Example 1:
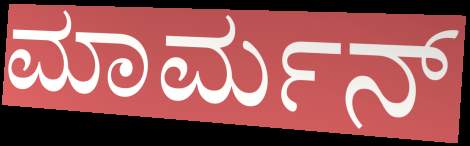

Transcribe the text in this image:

ಮಾರ್ಮನ್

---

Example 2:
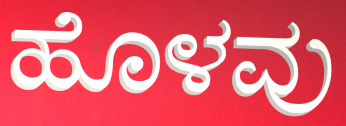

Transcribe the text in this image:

ಹೊಳವು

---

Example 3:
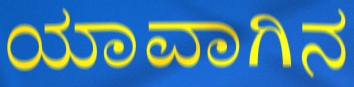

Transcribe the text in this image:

ಯಾವಾಗಿನ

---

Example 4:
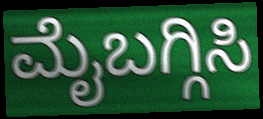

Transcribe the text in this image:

ಮೈಬಗ್ಗಿಸಿ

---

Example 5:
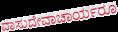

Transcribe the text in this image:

ವಾಸುದೇವಾಚಾರ್ಯರೂ